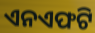
ଏନଏଫଟି